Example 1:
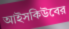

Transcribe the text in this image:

আইসকিউবের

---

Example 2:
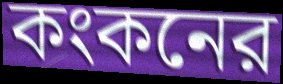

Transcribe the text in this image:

কংকনের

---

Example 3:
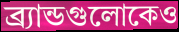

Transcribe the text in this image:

ব্র্যান্ডগুলোকেও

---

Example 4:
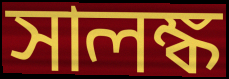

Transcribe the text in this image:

সালঙ্ক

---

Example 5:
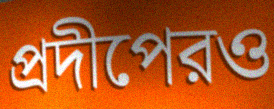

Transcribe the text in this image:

প্রদীপেরও